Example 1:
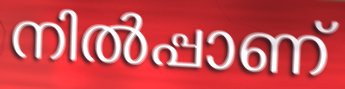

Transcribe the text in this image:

നിൽപ്പാണ്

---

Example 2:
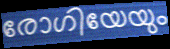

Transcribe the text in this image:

രോഗിയേയും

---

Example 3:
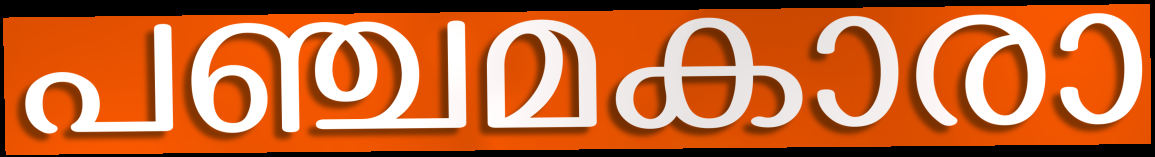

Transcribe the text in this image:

പഞ്ചമകാരാ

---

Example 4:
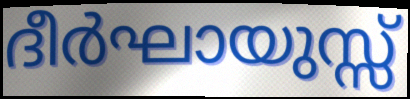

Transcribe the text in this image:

ദീർഘായുസ്സ്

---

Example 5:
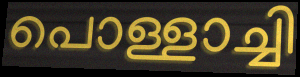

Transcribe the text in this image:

പൊള്ളാച്ചി